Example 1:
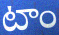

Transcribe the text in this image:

టాం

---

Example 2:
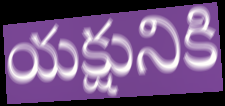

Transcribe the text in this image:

యక్షునికి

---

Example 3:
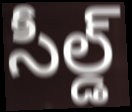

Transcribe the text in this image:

సీల్డ్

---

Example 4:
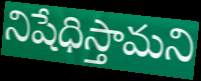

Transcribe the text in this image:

నిషేధిస్తామని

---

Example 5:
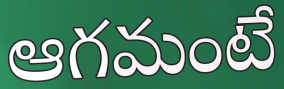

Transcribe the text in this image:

ఆగమంటే